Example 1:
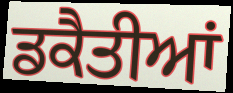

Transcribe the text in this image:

ਡਕੈਤੀਆਂ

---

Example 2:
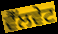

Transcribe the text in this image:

ਵੈੱਲਵੇਟ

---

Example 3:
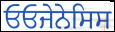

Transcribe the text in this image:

ਓਓਜੇਨੇਸਿਸ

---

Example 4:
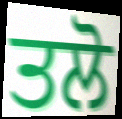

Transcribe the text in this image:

ਤਲੋ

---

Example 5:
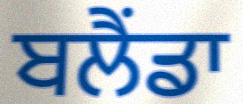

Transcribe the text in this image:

ਬਲੈਂਡਾ